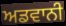
ਅਡਵਾਨੀ